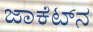
ಜಾಕೆಟ್‌ನ